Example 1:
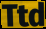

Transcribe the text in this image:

Ttd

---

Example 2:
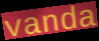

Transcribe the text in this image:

vanda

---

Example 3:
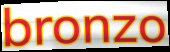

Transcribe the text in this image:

bronzo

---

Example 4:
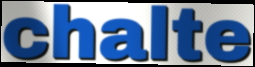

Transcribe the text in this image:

chalte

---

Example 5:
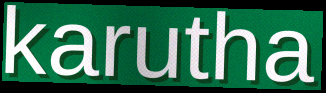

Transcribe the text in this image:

karutha